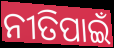
ନୀତିପାଇଁ